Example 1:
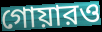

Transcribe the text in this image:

গোয়ারও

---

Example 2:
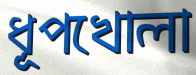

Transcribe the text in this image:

ধূপখোলা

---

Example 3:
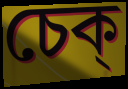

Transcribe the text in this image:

চেক্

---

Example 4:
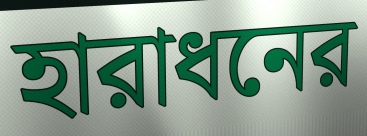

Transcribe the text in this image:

হারাধনের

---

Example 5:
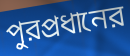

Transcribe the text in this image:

পুরপ্রধানের